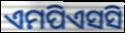
ଏମପିଏସସି